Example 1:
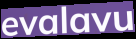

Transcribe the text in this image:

evalavu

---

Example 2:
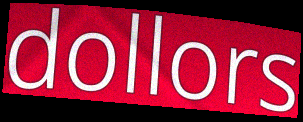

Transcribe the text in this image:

dollors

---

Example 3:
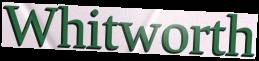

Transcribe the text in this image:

Whitworth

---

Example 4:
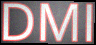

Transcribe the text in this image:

DMI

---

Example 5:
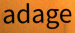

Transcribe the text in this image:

adage